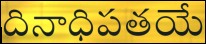
దినాధిపతయే